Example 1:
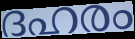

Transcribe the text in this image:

ദഹരം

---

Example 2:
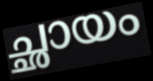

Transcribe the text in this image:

ച്ഛായം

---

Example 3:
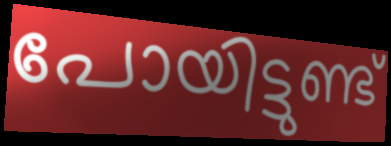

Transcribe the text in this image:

പോയിട്ടുണ്ട്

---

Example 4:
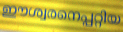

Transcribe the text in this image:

ഈശ്വരനെപ്പറ്റിയ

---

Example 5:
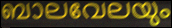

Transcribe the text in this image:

ബാലവേലയും